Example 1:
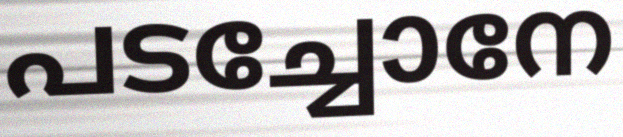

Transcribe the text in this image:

പടച്ചോനേ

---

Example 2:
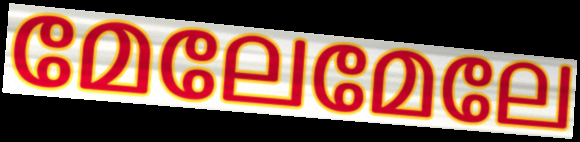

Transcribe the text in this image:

മേലേമേലേ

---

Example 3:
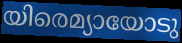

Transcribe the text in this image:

യിരെമ്യായോടു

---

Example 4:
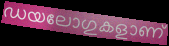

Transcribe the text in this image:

ഡയലോഗുകളാണ്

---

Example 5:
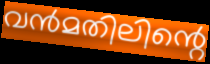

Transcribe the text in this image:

വൻമതിലിന്റെ